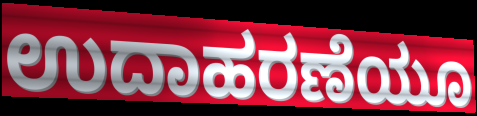
ಉದಾಹರಣೆಯೂ